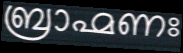
ബ്രാഹ്മണഃ